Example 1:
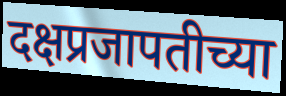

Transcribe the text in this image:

दक्षप्रजापतीच्या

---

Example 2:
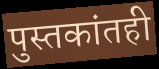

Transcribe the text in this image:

पुस्तकांतही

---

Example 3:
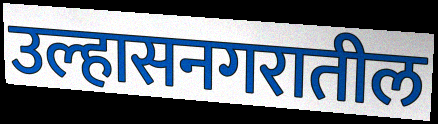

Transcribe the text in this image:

उल्हासनगरातील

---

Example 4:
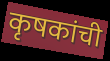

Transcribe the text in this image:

कृषकांची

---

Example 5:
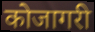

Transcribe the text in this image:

कोजागरी